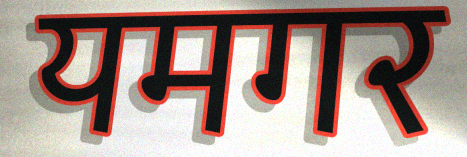
यमगर